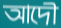
আদৌ